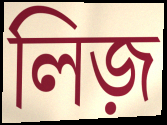
লিজ়